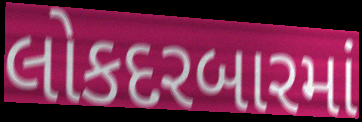
લોકદરબારમાં